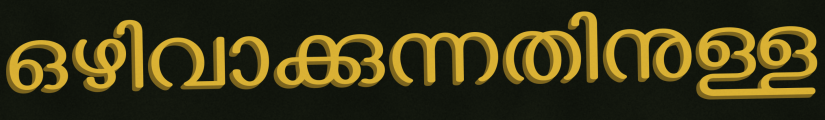
ഒഴിവാക്കുന്നതിനുള്ള